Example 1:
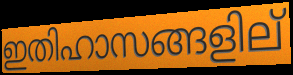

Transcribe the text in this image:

ഇതിഹാസങ്ങളില്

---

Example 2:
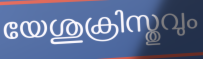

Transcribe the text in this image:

യേശുക്രിസ്തുവും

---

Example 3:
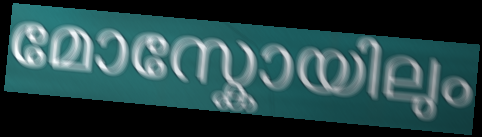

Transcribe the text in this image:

മോസ്കോയിലും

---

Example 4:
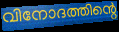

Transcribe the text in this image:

വിനോദത്തിന്റെ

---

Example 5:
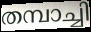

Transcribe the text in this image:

തമ്പാച്ചി